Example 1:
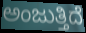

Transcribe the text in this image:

ಅಂಜುತ್ತಿದೆ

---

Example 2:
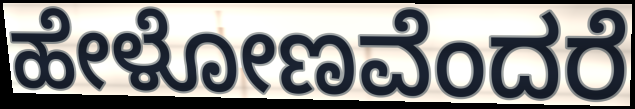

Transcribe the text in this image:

ಹೇಳೋಣವೆಂದರೆ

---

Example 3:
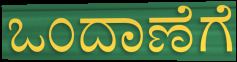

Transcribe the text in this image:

ಒಂದಾಣೆಗೆ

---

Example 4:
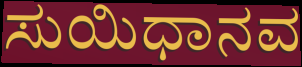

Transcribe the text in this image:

ಸುಯಿಧಾನವ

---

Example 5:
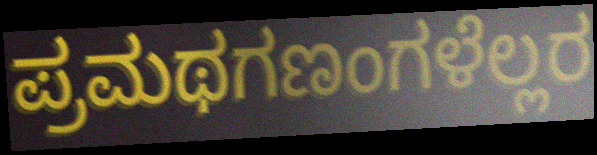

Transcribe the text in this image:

ಪ್ರಮಥಗಣಂಗಳೆಲ್ಲರ